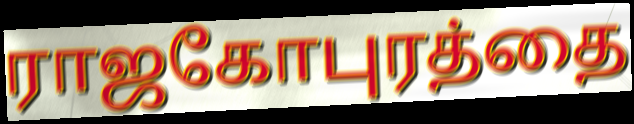
ராஜகோபுரத்தை